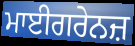
ਮਾਈਗਰੇਨਜ਼